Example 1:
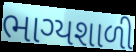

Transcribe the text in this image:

ભાગ્યશાળી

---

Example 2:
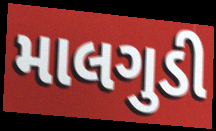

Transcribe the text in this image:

માલગુડી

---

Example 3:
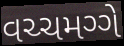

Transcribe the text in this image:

વચ્ચમગ્ગે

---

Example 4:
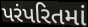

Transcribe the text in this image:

પરંપરિતમાં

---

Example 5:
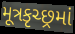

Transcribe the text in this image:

મૂત્રકૃચ્છ્રમાં